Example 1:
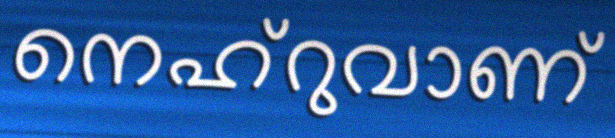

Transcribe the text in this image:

നെഹ്റുവാണ്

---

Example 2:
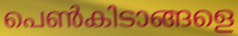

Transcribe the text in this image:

പെൺകിടാങ്ങളെ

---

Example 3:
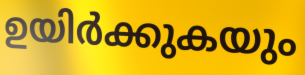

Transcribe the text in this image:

ഉയിർക്കുകയും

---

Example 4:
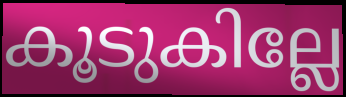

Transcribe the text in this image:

കൂടുകില്ലേ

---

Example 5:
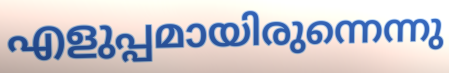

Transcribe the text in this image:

എളുപ്പമായിരുന്നെന്നു